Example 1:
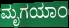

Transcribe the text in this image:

ಮೃಗಯಾಂ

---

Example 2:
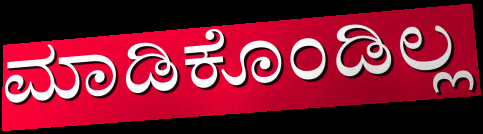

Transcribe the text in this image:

ಮಾಡಿಕೊಂಡಿಲ್ಲ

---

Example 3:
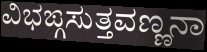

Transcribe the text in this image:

ವಿಭಙ್ಗಸುತ್ತವಣ್ಣನಾ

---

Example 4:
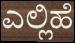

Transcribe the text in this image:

ಎಲ್ಲಿಹೆ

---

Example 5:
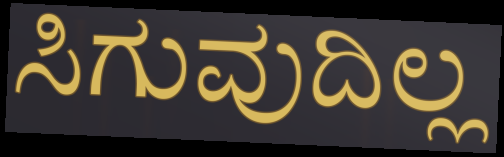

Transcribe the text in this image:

ಸಿಗುವುದಿಲ್ಲ